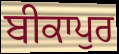
ਬੀਕਾਪੁਰ